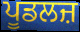
ਪੂਡਲਜ਼